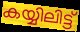
കയ്യിലിട്ട്